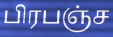
பிரபஞ்ச